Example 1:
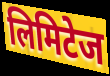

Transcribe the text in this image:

लिमिटेज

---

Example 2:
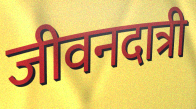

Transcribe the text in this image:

जीवनदात्री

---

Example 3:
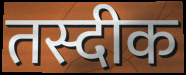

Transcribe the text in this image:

तस्‍दीक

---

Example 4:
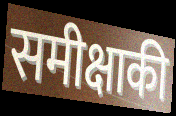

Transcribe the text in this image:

समीक्षाकी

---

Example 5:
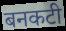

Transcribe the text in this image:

बनकटी